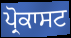
ਪ੍ਰੋਕਾਸਟ